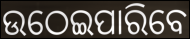
ଉଠେଇପାରିବେ